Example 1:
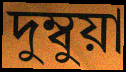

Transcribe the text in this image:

দুম্বুয়া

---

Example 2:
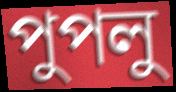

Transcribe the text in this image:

পুপলু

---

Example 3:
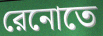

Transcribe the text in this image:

রেনোতে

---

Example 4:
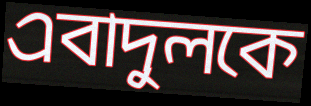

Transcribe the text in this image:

এবাদুলকে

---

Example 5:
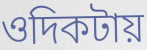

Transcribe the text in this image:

ওদিকটায়